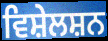
ਵਿਸ਼ੇਲਸ਼ਨ